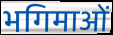
भगिमाओं